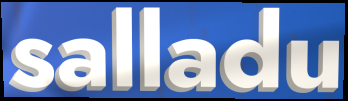
salladu